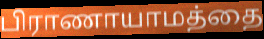
பிராணாயாமத்தை